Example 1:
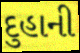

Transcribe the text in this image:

દુહાની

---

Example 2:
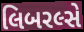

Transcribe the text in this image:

લિબરલ્સે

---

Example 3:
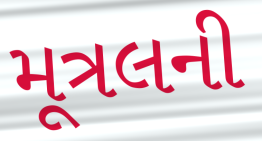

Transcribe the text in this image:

મૂત્રલની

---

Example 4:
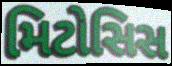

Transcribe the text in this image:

મિટોસિસ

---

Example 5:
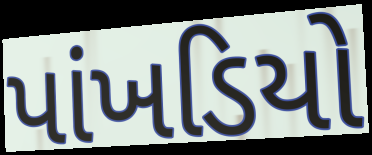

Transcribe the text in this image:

પાંખડિયો